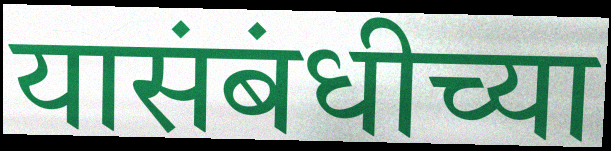
यासंबंधीच्या